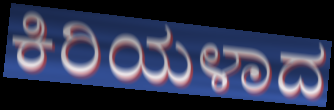
ಕಿರಿಯಳಾದ